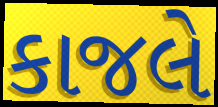
કાજલે